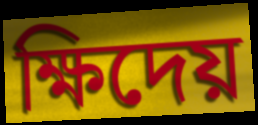
ক্ষিদেয়